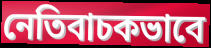
নেতিবাচকভাবে